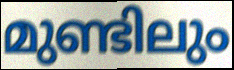
മുണ്ടിലും